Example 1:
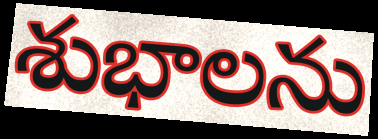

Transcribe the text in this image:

శుభాలను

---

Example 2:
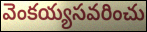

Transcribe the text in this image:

వెంకయ్యసవరించు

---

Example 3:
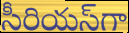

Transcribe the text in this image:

సీరియస్‌గా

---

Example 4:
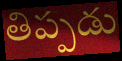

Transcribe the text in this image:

తిప్పడు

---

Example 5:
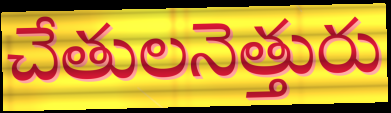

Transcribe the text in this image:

చేతులనెత్తురు